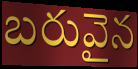
బరువైన